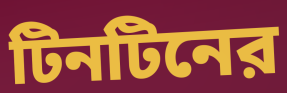
টিনটিনের